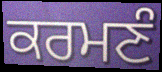
ਕਰਮਣੰ